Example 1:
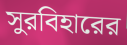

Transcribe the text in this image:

সুরবিহারের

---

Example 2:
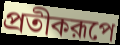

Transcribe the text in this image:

প্রতীকরূপে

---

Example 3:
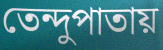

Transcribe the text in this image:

তেন্দুপাতায়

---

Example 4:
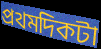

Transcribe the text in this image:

প্রথমদিকটা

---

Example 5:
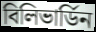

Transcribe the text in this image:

বিলিভার্ডিন